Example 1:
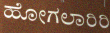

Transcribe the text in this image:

ಹೋಗಲಾರಿರಿ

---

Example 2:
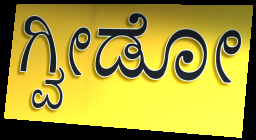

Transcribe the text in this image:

ಗ್ವೀಡೋ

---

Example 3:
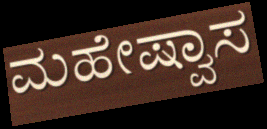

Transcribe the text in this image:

ಮಹೇಷ್ವಾಸ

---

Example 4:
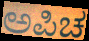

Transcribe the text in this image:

ಅಪಿಚ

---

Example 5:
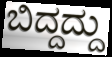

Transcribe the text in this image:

ಬಿದ್ದದ್ದು